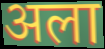
अला